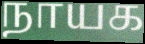
நாயக